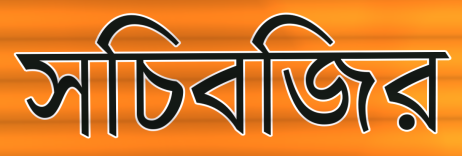
সচিবজির